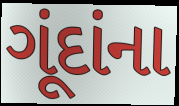
ગૂંદાંના